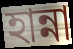
হান্না